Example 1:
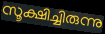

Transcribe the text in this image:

സൂക്ഷിച്ചിരുന്നു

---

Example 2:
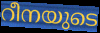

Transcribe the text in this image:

റീനയുടെ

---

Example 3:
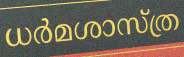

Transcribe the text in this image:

ധർമശാസ്ത്ര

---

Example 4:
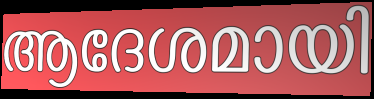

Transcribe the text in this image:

ആദേശമായി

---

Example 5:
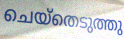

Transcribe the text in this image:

ചെയ്തെടുത്തു